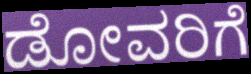
ಡೋವರಿಗೆ